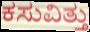
ಕಸುವಿತ್ತು